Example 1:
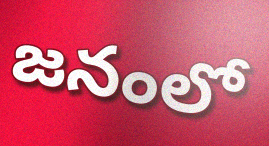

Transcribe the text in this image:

జనంలో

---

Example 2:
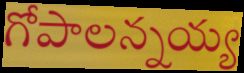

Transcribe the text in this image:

గోపాలన్నయ్య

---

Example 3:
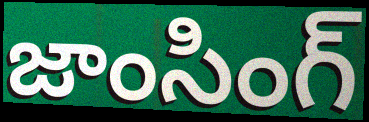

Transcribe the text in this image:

జాంసింగ్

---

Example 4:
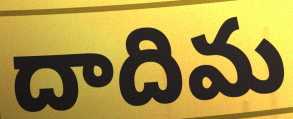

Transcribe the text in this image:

దాదిమ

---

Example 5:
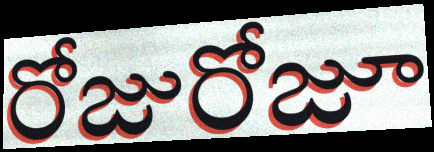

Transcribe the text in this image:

రోజురోజూ